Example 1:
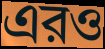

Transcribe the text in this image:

এরও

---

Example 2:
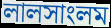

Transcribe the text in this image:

লালসাংলম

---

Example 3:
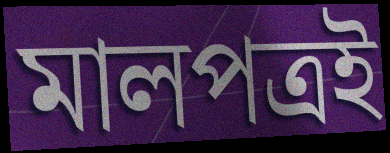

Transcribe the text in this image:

মালপত্রই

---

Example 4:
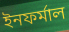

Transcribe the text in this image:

ইনফর্মাল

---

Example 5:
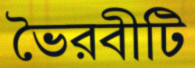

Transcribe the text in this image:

ভৈরবীটি